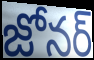
జోనర్